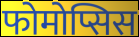
फोमोप्सिस